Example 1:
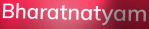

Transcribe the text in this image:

Bharatnatyam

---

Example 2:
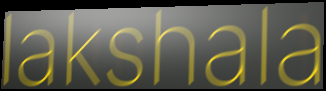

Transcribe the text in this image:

lakshala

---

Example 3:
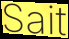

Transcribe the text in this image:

Sait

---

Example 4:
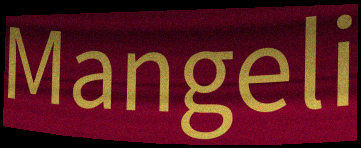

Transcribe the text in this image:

Mangeli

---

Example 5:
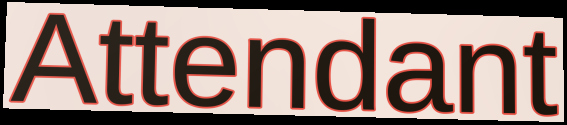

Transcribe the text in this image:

Attendant